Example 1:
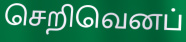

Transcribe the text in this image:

செறிவெனப்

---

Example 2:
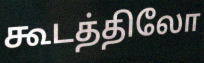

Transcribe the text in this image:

கூடத்திலோ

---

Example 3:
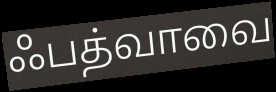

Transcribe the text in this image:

ஃபத்வாவை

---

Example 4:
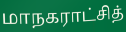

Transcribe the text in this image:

மாநகராட்சித்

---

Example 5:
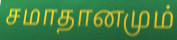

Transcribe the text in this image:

சமாதானமும்